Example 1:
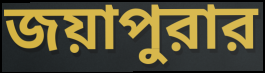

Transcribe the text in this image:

জয়াপুরার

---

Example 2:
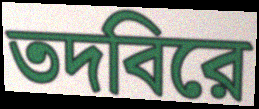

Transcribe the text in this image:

তদবিরে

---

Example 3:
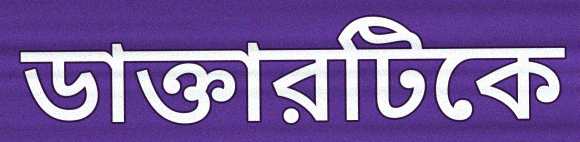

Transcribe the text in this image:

ডাক্তারটিকে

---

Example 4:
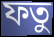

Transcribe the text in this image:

ফতু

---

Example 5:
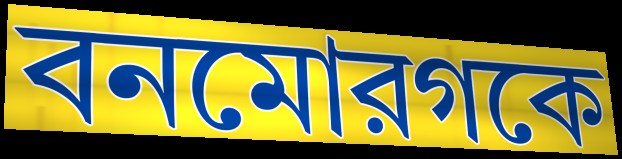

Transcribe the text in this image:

বনমোরগকে